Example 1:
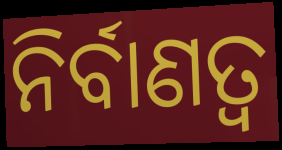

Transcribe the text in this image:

ନିର୍ବାଣତ୍ୱ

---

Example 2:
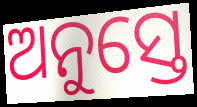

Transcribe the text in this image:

ଅନୁସ୍ତେ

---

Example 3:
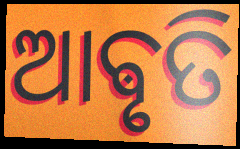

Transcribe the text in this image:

ଆଵୃତି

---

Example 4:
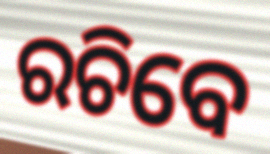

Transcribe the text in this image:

ରଚିବେ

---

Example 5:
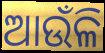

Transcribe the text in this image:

ଆଉଁଳି